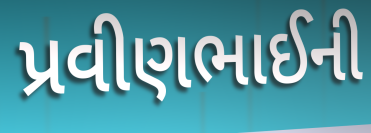
પ્રવીણભાઈની